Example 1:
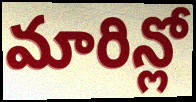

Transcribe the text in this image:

మారిన్లో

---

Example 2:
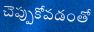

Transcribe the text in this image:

చెప్పుకోవడంతో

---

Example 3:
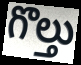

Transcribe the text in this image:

గొల్తు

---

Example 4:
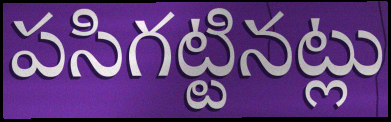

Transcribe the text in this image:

పసిగట్టినట్లు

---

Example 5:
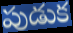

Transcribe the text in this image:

పుడుక